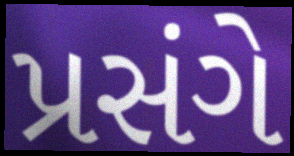
પ્રસંગે